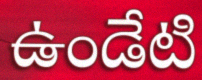
ఉండేటి